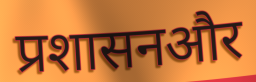
प्रशासनऔर